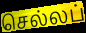
செல்லப்